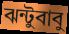
ঝন্টুবাবু